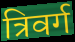
त्रिवर्ग